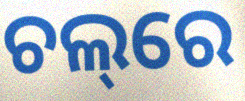
ଚଲ୍‌ରେ